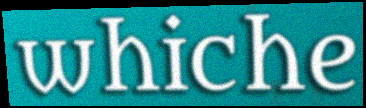
whiche